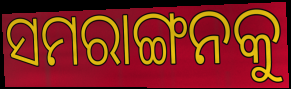
ସମରାଙ୍ଗନକୁ